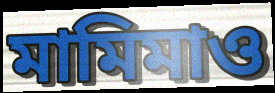
মামিমাও